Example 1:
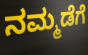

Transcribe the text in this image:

ನಮ್ಮಡೆಗೆ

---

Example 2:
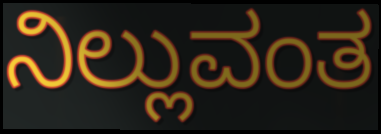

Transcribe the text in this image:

ನಿಲ್ಲುವಂತ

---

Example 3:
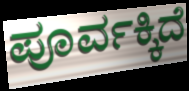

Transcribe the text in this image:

ಪೂರ್ವಕ್ಕಿದೆ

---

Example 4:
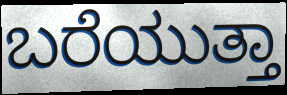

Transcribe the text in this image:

ಬರೆಯುತ್ತಾ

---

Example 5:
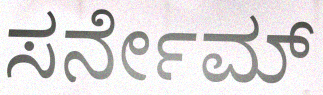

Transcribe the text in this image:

ಸರ್ನೇಮ್